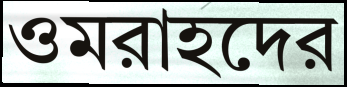
ওমরাহদের